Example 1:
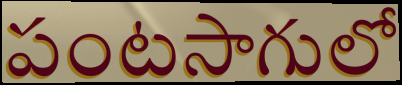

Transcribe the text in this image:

పంటసాగులో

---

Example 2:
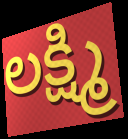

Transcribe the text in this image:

లక్ష్మి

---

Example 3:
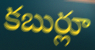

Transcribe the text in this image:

కబుర్లూ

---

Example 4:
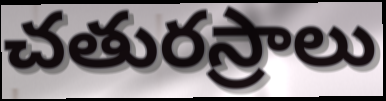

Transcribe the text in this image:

చతురస్రాలు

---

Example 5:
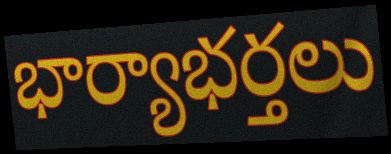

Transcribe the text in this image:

భార్యాభర్తలు